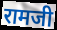
रामजी